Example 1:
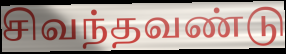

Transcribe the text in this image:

சிவந்தவண்டு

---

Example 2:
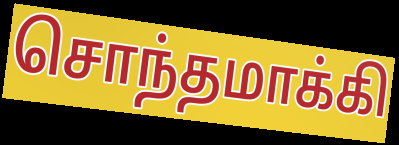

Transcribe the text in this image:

சொந்தமாக்கி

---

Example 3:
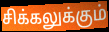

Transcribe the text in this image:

சிக்கலுக்கும்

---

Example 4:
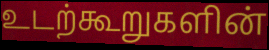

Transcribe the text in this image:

உடற்கூறுகளின்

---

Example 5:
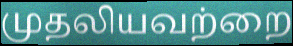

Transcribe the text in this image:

முதலியவற்றை